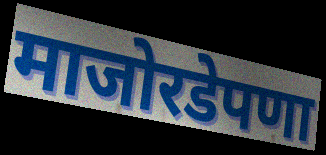
माजोरडेपणा